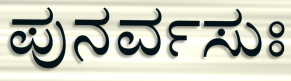
ಪುನರ್ವಸುಃ